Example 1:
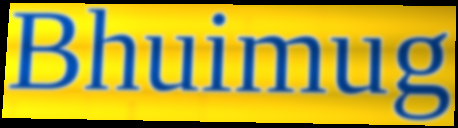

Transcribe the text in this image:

Bhuimug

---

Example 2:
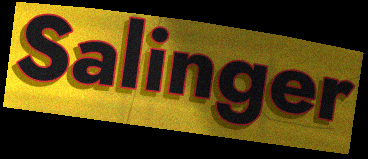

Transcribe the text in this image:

Salinger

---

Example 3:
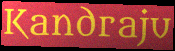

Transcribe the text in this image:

Kandraju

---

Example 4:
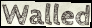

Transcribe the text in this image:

Walled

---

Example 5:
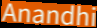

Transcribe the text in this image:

Anandhi